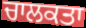
ਚਾਲਕਤਾ